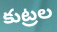
కుట్రల